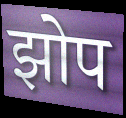
झोप